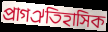
প্ৰাগঐতিহাসিক